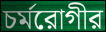
চর্মরোগীর